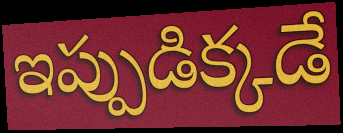
ఇప్పుడిక్కడే